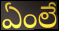
ఏంలే